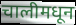
चालीमधून